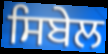
ਸਿਬੇਲ